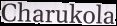
Charukola